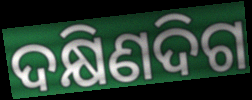
ଦକ୍ଷିଣଦିଗ